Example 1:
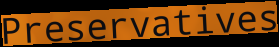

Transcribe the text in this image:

Preservatives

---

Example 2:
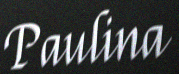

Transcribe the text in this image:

Paulina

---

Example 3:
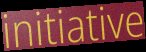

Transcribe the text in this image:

initiative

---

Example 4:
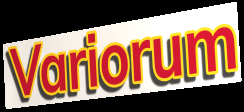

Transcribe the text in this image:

Variorum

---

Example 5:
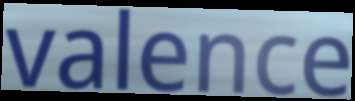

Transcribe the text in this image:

valence